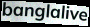
banglalive